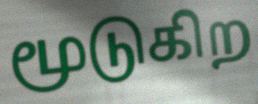
மூடுகிற